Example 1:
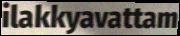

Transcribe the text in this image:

ilakkyavattam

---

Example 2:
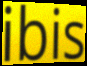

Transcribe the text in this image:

ibis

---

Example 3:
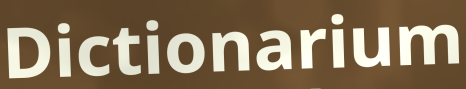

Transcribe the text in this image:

Dictionarium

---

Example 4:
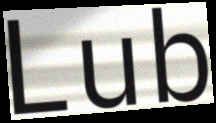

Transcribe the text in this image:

Lub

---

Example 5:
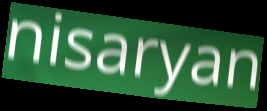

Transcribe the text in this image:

nisaryan